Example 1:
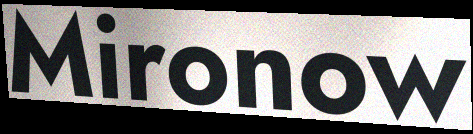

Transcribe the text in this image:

Mironow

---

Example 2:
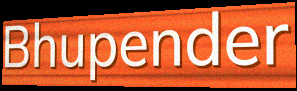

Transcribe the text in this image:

Bhupender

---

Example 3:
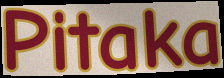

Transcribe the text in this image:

Pitaka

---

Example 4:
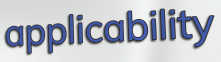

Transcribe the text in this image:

applicability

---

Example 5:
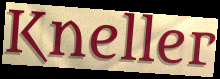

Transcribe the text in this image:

Kneller